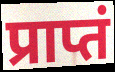
प्राप्तं